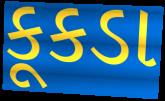
કૂકડા